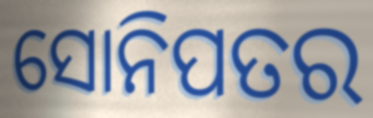
ସୋନିପତର